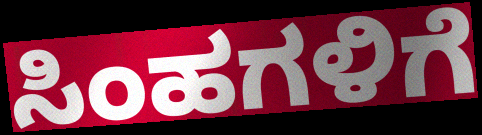
ಸಿಂಹಗಳಿಗೆ